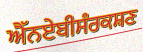
ਐੱਨਏਬੀਸੰਰਕਸ਼ਣ